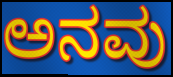
ಅನವು